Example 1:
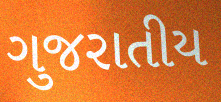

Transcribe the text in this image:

ગુજરાતીય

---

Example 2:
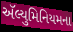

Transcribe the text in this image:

ઍલ્યુમિનિયમના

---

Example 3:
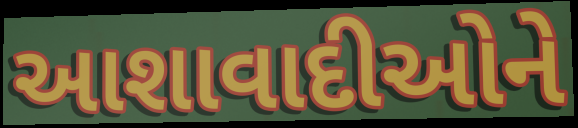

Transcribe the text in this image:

આશાવાદીઓને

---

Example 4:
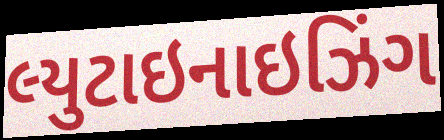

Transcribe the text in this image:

લ્યુટાઇનાઇઝિંગ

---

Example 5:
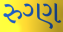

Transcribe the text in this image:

રુગ્ણ